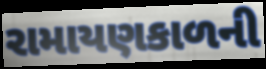
રામાયણકાળની